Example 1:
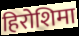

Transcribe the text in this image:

हिरोशिमा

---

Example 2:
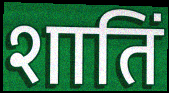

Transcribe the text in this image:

शातिं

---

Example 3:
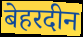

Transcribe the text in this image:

बेहरदीन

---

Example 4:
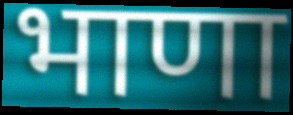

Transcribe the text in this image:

भाणा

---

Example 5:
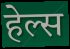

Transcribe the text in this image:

हेल्स